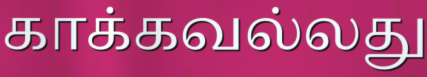
காக்கவல்லது